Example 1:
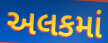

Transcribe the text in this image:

અલકમાં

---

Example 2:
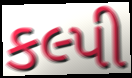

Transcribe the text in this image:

કલ્પી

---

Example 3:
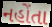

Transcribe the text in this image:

નહોંતા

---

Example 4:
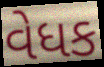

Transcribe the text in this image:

વેધક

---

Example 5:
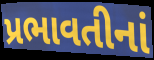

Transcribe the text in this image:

પ્રભાવતીનાં